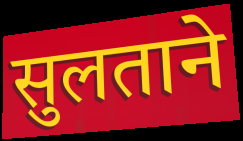
सुलताने